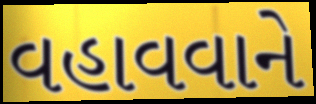
વહાવવાને